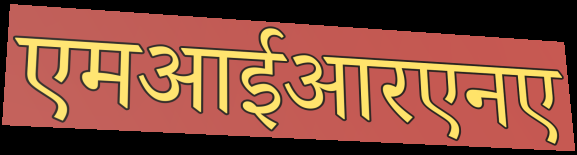
एमआईआरएनए